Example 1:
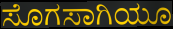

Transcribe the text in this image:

ಸೊಗಸಾಗಿಯೂ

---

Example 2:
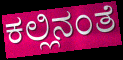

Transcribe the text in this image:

ಕಲ್ಲಿನಂತೆ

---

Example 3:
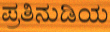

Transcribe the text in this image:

ಪ್ರತಿನುಡಿಯ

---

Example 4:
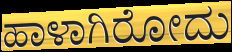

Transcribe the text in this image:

ಹಾಳಾಗಿರೋದು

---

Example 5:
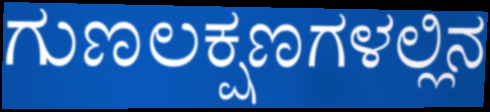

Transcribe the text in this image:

ಗುಣಲಕ್ಷಣಗಳಲ್ಲಿನ